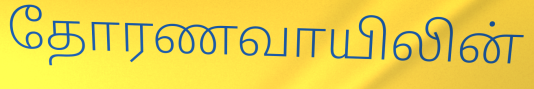
தோரணவாயிலின்